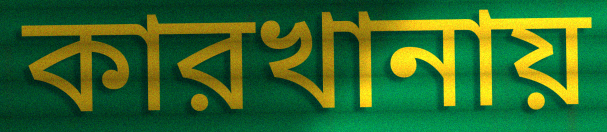
কারখানায়